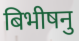
बिभीषनु